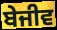
ਬੇਜੀਵ